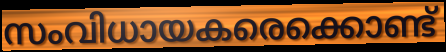
സംവിധായകരെക്കൊണ്ട്